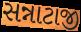
સન્નાટાજી